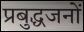
प्रबुद्धजनों